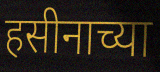
हसीनाच्या